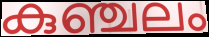
കുഞ്ചലം